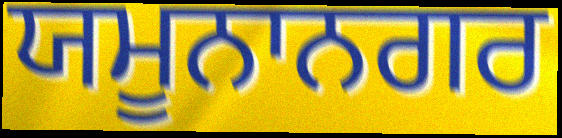
ਯਮੂਨਾਨਗਰ